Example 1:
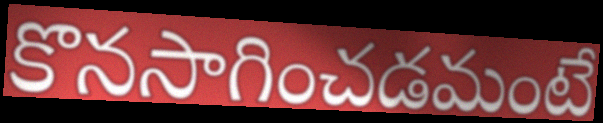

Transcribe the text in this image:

కొనసాగించడమంటే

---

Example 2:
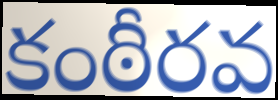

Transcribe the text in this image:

కంఠీరవ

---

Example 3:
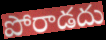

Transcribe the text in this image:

పోరాడదు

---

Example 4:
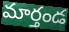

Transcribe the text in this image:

మార్తండ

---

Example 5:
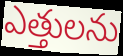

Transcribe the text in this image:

ఎత్తులను